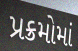
પ્રક્રમોમાં